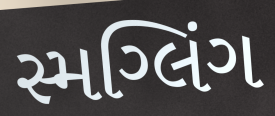
સ્મગ્લિંગ